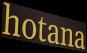
hotana